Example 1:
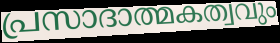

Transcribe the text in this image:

പ്രസാദാത്മകത്വവും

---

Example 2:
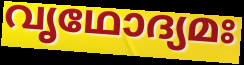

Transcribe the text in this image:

വൃഥോദ്യമഃ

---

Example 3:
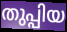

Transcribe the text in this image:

തുപ്പിയ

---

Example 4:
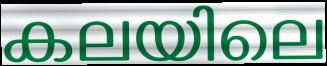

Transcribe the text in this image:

കലയിലെ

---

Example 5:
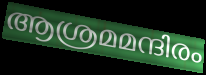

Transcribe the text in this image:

ആശ്രമമന്ദിരം